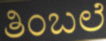
ತಿಂಬಲೆ